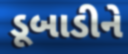
ડૂબાડીને